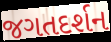
જગતદર્શન